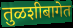
तुळशीबागेत